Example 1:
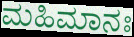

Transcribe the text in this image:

ಮಹಿಮಾನಃ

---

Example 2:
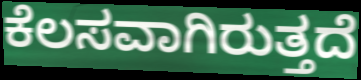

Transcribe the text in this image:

ಕೆಲಸವಾಗಿರುತ್ತದೆ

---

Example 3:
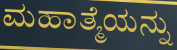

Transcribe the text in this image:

ಮಹಾತ್ಮೆಯನ್ನು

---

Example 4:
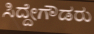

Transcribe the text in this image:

ಸಿದ್ದೇಗೌಡರು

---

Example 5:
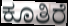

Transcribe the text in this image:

ಕೂತಿರೆ